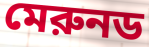
মেরুনড